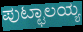
ಪುಟ್ಟಾಲಯ್ಯ